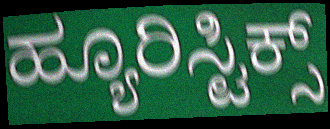
ಹ್ಯೂರಿಸ್ಟಿಕ್ಸ್